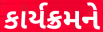
કાર્યક્રમને